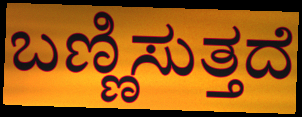
ಬಣ್ಣಿಸುತ್ತದೆ